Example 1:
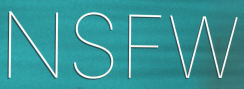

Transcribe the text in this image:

NSFW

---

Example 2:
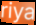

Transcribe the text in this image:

riya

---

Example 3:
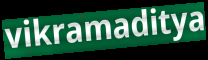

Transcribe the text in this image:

vikramaditya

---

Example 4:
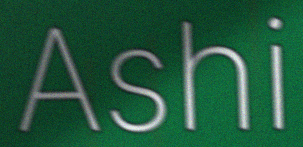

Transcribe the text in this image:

Ashi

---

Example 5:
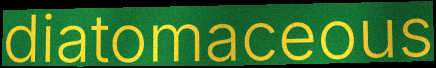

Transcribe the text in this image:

diatomaceous